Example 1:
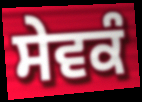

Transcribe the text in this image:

ਸੇਵਕੰ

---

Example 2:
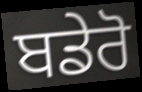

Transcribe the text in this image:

ਬਡੇਰੋ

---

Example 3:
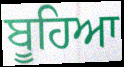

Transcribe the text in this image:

ਬੂਹਿਆ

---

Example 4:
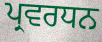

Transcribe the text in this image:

ਪ੍ਰਵਰਧਨ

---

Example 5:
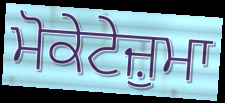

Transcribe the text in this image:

ਮੋਕੇਟੇਜ਼ੁਮਾ